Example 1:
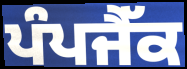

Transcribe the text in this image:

ਪੰਪਜੈੱਕ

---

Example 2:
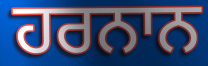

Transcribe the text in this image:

ਹਰਨਾਨ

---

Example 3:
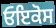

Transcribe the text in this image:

ਓਇਕੋਸ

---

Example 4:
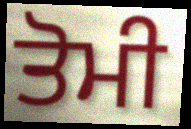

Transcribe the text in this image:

ਤੋਮੀ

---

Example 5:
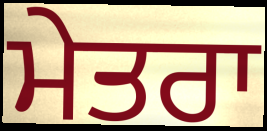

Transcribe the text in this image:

ਮੇਤਰਾ